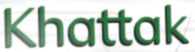
Khattak